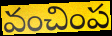
వంచింప